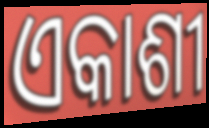
ଏକାଶୀ